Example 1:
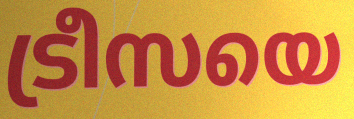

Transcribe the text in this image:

ട്രീസയെ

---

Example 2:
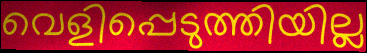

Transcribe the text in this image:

വെളിപ്പെടുത്തിയില്ല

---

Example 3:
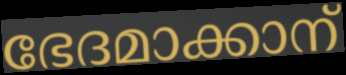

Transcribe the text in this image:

ഭേദമാക്കാന്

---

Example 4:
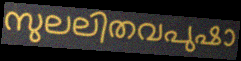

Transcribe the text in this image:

സുലലിതവപുഷാ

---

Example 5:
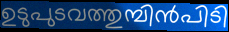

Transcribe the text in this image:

ഉടുപുടവത്തുമ്പിൻപിടി